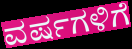
ವರ್ಷಗಳಿಗೆ